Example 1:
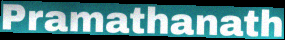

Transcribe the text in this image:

Pramathanath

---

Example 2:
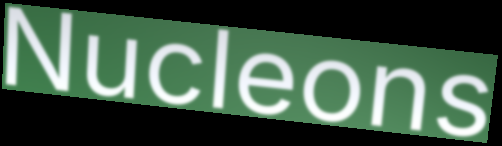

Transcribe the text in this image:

Nucleons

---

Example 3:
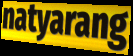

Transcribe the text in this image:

natyarang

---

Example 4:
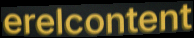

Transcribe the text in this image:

erelcontent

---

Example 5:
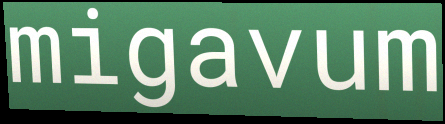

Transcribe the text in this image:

migavum